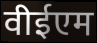
वीईएम